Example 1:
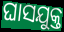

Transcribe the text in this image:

ଘାସଯୁକ୍ତ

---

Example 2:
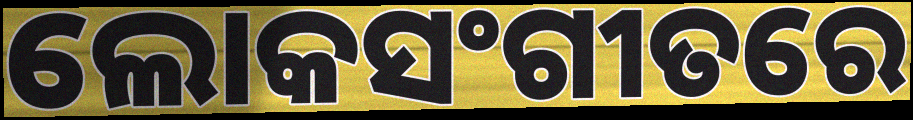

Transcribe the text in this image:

ଲୋକସଂଗୀତରେ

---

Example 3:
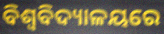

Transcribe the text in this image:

ବିଶ୍ୱବିଦ୍ୟାଳୟରେ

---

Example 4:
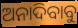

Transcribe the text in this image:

ଅନାଦିବାବୁ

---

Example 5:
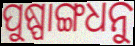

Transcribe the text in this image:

ପୁଷ୍ପାଙ୍ଗଧନୁ